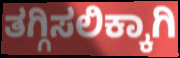
ತಗ್ಗಿಸಲಿಕ್ಕಾಗಿ